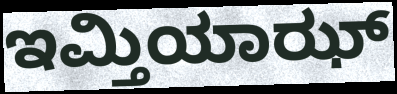
ಇಮ್ತಿಯಾಝ್